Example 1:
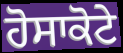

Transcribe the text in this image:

ਹੋਸਾਕੋਟੇ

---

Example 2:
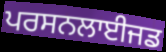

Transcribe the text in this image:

ਪਰਸਨਲਾਈਜਡ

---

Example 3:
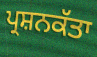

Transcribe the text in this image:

ਪ੍ਰਸ਼ਨਕੱਤਾ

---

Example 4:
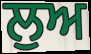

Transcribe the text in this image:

ਲੁਅ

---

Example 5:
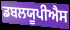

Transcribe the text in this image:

ਡਬਲਯੂਪੀਐਸ